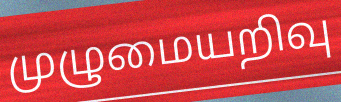
முழுமையறிவு